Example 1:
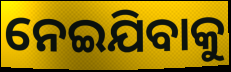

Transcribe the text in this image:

ନେଇଯିବାକୁ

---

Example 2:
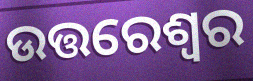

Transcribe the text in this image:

ଉତ୍ତରେଶ୍ୱର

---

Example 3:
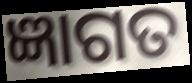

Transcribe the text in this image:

ଜ୍ଞାଗତ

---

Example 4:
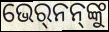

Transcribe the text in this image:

ଭେର୍‍ନନ୍‌ଙ୍କୁ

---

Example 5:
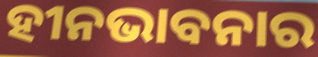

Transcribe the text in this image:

ହୀନଭାବନାର